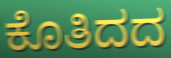
ಕೊತಿದದ